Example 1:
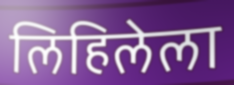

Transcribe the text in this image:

लिहिलेला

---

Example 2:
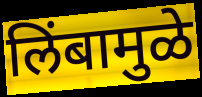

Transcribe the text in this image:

लिंबामुळे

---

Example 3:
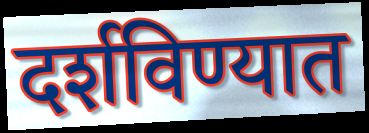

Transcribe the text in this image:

दर्शविण्यात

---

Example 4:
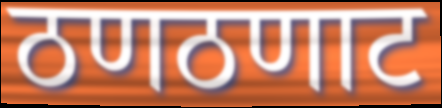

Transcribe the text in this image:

ठणठणाट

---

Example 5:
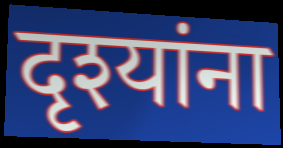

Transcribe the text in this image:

दृश्यांना